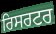
ਰਿਸਰਟਰ